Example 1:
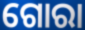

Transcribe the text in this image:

ଗୋରା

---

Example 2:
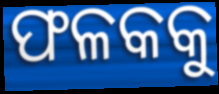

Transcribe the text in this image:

ଫଳକକୁ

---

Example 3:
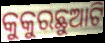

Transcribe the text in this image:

କୁକୁରଛୁଆଟି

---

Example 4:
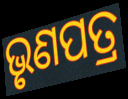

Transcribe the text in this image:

ଭୃଣପତ୍ର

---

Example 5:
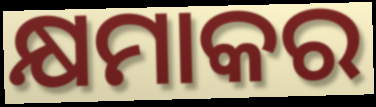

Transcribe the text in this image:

କ୍ଷମାକର